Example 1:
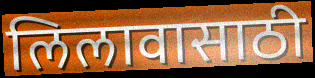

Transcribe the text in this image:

लिलावासाठी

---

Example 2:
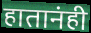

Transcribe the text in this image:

हातानंही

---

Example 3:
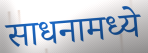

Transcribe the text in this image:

साधनामध्ये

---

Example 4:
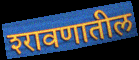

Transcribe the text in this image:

श्रावणातील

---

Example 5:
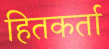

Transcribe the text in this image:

हितकर्ता